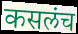
कसलंच